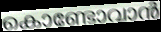
കൊണ്ടോവാൻ